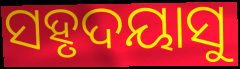
ସହୃଦୟାସୁ